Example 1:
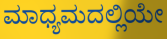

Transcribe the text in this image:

ಮಾಧ್ಯಮದಲ್ಲಿಯೇ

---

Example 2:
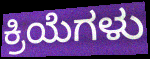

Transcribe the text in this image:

ಕ್ರಿಯೆಗಳು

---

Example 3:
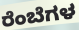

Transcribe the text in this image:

ರೆಂಬೆಗಳ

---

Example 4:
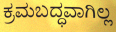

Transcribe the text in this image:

ಕ್ರಮಬದ್ಧವಾಗಿಲ್ಲ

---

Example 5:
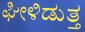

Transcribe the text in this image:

ಘೀಳಿಡುತ್ತ